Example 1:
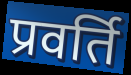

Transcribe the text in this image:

प्रवर्ति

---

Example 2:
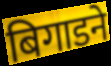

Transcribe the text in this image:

बिगाडने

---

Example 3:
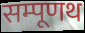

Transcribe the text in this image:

सम्पूणथ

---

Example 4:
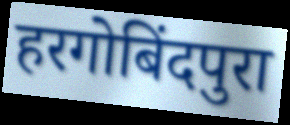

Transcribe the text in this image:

हरगोबिंदपुरा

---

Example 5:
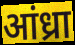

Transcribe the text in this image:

आंध्रा